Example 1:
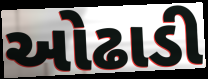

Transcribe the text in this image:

ઓઢાડી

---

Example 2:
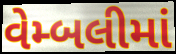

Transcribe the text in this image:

વેમ્બલીમાં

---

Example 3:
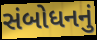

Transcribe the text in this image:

સંબોધનનું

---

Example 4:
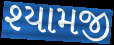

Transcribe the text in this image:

શ્યામજી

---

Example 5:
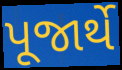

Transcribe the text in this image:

પૂજાર્થે